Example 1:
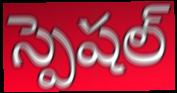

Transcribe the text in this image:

స్పెషల్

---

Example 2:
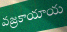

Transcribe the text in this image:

వజ్రకాయాయ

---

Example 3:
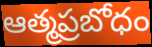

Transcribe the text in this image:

ఆత్మప్రబోధం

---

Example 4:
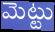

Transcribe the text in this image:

మెట్టు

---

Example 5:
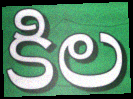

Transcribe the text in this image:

కిల